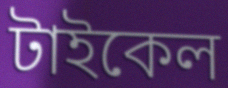
টাইকেল